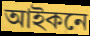
আইকনে